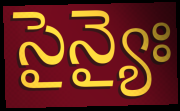
సైన్యైః